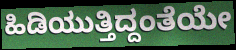
ಹಿಡಿಯುತ್ತಿದ್ದಂತೆಯೇ